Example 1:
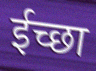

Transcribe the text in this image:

ईच्छा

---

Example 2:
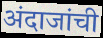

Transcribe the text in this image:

अंदाजांची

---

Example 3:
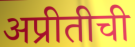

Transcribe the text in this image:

अप्रीतीची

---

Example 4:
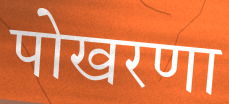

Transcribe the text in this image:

पोखरणा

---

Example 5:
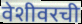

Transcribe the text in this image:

वेशीवरची